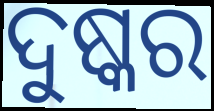
ଦୁଷ୍କର